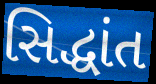
સિદ્ધાંત